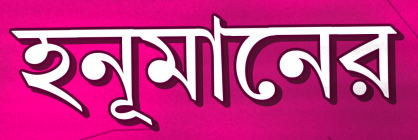
হনূমানের